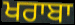
ਖਰਾਬਾ